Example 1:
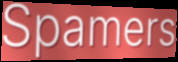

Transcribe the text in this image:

Spamers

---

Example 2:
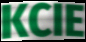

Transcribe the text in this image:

KCIE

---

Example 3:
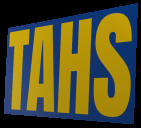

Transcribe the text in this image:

TAHS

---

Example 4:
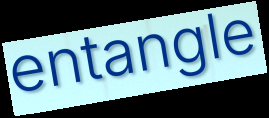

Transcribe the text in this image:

entangle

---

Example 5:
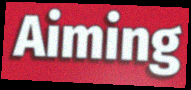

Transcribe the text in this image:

Aiming